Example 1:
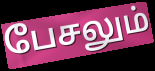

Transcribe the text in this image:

பேசலும்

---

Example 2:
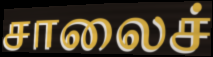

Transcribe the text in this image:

சாலைச்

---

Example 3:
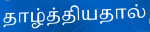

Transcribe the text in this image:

தாழ்த்தியதால்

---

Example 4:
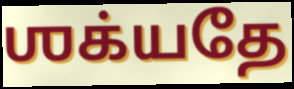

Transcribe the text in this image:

ஶக்யதே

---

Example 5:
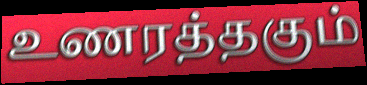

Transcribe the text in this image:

உணரத்தகும்